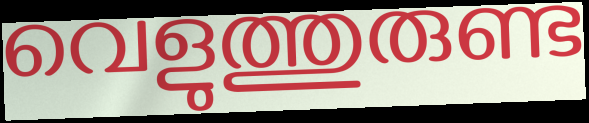
വെളുത്തുരുണ്ട